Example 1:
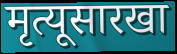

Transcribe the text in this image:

मृत्यूसारखा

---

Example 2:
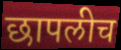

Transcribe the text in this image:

छापलीच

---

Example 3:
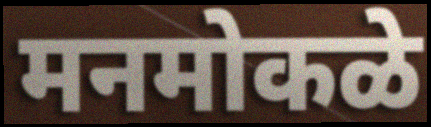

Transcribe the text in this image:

मनमोकळे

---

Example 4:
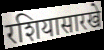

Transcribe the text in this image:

रशियासारखे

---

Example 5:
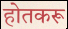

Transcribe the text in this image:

होतकरू